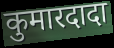
कुमारदादा